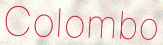
Colombo